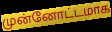
முன்னோட்டமாக